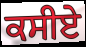
ਕਸੀਏ